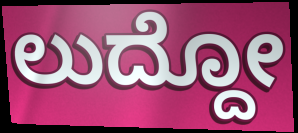
ಲುದ್ದೋ